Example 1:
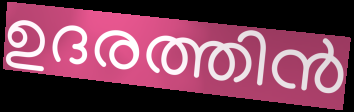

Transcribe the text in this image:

ഉദരത്തിൻ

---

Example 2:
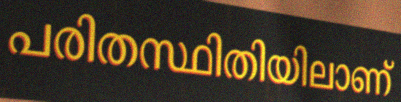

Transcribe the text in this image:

പരിതസ്ഥിതിയിലാണ്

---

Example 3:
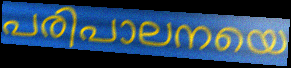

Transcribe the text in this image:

പരിപാലനയെ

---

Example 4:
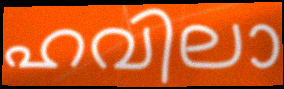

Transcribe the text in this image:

ഹവിലാ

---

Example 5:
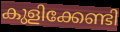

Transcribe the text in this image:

കുളിക്കേണ്ടി